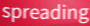
spreading